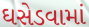
ઘસેડવામાં